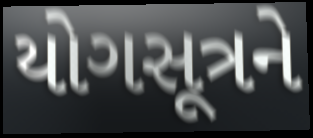
યોગસૂત્રને